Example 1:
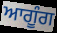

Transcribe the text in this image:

ਆਗੂੰਗ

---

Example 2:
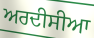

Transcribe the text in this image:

ਅਰਦੀਸੀਆ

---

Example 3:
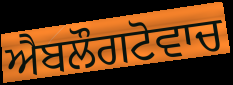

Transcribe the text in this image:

ਐਬਲੌਗਟੋਵਾਚ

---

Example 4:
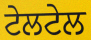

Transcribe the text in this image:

ਟੇਲਟੇਲ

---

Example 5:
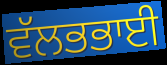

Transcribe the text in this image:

ਵੱਲਭਭਾਈ